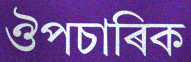
ঔপচাৰিক